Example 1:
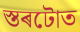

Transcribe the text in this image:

স্তৰটোত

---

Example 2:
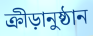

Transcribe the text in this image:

ক্ৰীড়ানুষ্ঠান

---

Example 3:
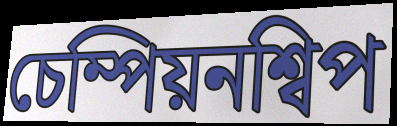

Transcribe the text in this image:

চেম্পিয়নশ্বিপ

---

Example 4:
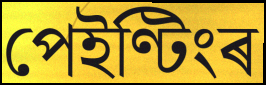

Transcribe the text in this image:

পেইণ্টিংৰ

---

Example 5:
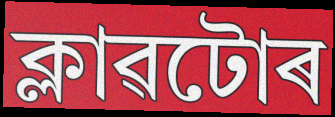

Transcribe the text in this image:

ক্লাৱটোৰ